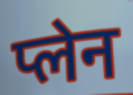
प्लेन